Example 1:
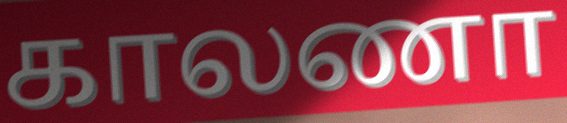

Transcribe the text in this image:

காலணா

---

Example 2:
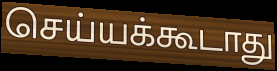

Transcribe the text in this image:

செய்யக்கூடாது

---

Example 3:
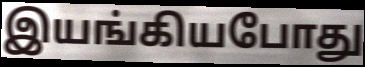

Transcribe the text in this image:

இயங்கியபோது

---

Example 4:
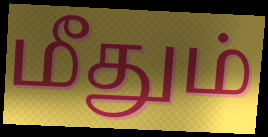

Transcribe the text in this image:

மீதும்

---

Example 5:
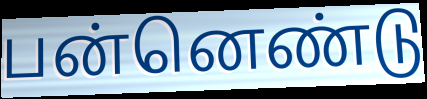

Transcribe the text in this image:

பன்னெண்டு